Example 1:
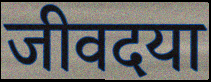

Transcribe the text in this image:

जीवदया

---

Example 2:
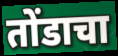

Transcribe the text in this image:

तोंडाचा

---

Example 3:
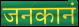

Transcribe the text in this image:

जनकानं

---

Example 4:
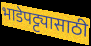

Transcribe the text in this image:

भाडेपट्ट्यासाठी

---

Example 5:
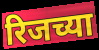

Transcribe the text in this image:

रिजच्या